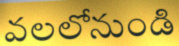
వలలోనుండి